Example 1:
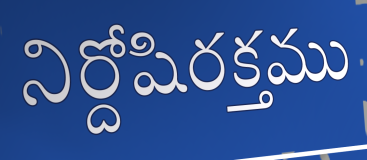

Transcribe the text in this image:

నిర్దోషిరక్తము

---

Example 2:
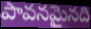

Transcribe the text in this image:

పావనమైనది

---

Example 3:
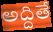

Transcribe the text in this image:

అద్దితే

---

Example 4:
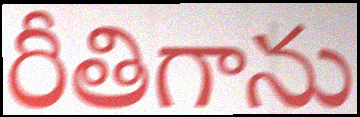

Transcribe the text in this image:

రీతిగాను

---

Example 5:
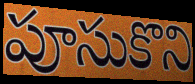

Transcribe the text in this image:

పూసుకొని